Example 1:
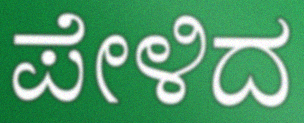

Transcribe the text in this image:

ಪೇಳಿದ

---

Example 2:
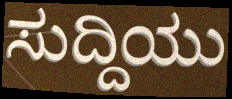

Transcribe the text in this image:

ಸುದ್ದಿಯು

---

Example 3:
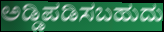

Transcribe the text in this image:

ಅಡ್ಡಿಪಡಿಸಬಹುದು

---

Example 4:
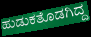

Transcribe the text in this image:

ಹುಡುಕತೊಡಗಿದ್ದ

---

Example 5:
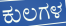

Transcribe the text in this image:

ಕುಲಗಳ